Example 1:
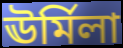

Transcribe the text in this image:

ঊর্মিলা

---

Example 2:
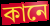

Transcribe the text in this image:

কানে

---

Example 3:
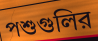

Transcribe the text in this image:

পশুগুলির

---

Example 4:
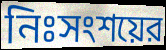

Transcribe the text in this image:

নিঃসংশয়ের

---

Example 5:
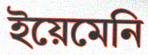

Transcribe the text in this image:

ইয়েমেনি